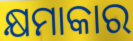
କ୍ଷମାକାର